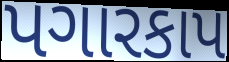
પગારકાપ